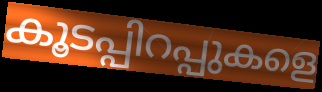
കൂടപ്പിറപ്പുകളെ